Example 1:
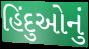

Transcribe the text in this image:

હિંદુઓનું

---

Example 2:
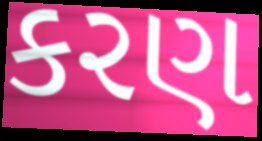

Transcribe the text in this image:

કરણ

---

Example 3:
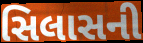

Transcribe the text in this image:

સિલાસની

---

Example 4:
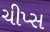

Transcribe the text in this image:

ચીપ્સ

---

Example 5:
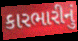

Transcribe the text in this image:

કારભારીનું